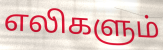
எலிகளும்